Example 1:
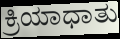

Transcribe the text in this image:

ಕ್ರಿಯಾಧಾತು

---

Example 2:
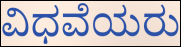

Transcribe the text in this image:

ವಿಧವೆಯರು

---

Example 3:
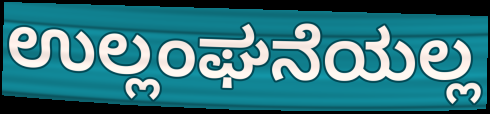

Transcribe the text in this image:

ಉಲ್ಲಂಘನೆಯಲ್ಲ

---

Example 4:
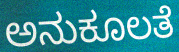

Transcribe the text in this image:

ಅನುಕೂಲತೆ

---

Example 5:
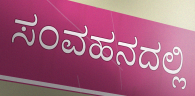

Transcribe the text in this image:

ಸಂವಹನದಲ್ಲಿ